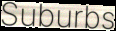
Suburbs